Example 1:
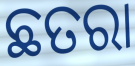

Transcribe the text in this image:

ଛତରା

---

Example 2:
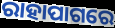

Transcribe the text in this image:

ରାହାପାଗରେ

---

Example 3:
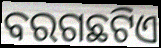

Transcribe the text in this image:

ବରଗଛଟିଏ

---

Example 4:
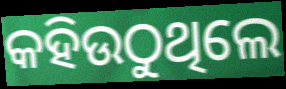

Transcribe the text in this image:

କହିଉଠୁଥିଲେ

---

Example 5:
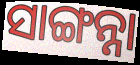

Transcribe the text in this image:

ସାଙ୍ଗନ୍ନା